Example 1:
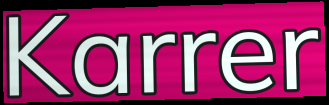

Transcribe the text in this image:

Karrer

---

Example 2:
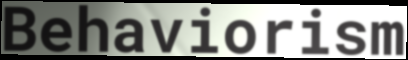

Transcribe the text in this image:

Behaviorism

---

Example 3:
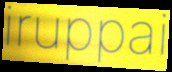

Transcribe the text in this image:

iruppai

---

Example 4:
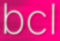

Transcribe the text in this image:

bcl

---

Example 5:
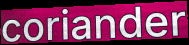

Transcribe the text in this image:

coriander